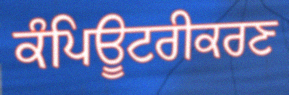
ਕੰਪਿਊਟਰੀਕਰਣ